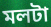
মলটা